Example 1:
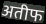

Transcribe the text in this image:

अतीफ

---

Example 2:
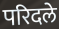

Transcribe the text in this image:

परिदले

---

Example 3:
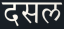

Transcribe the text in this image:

दसल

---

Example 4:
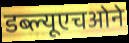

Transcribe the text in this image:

डब्ल्यूएचओने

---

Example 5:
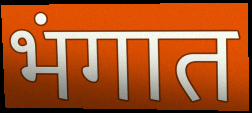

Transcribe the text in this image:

भंगात